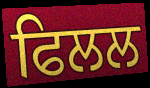
ਫਿਲਲ